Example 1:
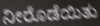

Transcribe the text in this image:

ನೀರೊಡೆಯಿತು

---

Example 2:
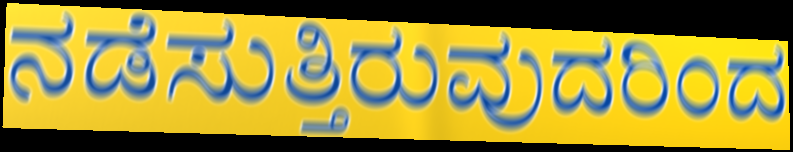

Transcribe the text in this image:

ನಡೆಸುತ್ತಿರುವುದರಿಂದ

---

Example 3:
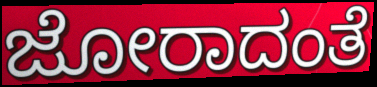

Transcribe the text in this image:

ಜೋರಾದಂತೆ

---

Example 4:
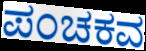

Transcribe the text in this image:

ಪಂಚಕವ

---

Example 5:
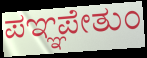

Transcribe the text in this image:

ಪಞ್ಞಪೇತುಂ